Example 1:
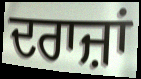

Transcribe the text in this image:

ਦਰਾਜ਼ਾਂ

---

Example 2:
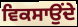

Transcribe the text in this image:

ਵਿਕਸਾਉਂਦੇ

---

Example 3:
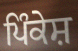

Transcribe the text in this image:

ਪਿੰਕੇਸ਼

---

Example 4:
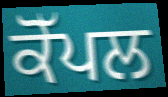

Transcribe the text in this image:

ਕੋੱਪਲ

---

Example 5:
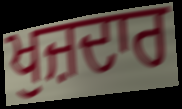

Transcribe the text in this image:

ਖੁਜ਼ਦਾਰ